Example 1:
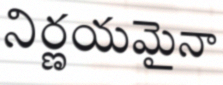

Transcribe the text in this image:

నిర్ణయమైనా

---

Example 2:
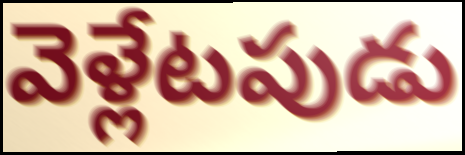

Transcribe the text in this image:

వెళ్లేటపుడు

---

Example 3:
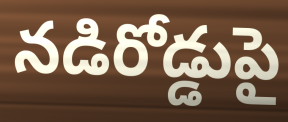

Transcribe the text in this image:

నడిరోడ్డుపై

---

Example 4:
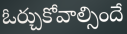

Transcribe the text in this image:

ఓర్చుకోవాల్సిందే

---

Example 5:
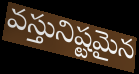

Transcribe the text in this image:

వస్తునిష్టమైన